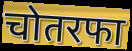
चोतरफा